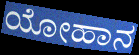
ಯೋಹಾನ